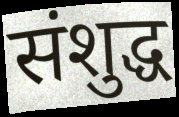
संशुद्ध